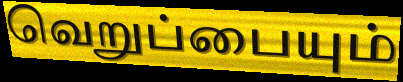
வெறுப்பையும்